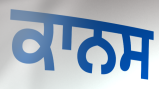
ਕਾਨਸ